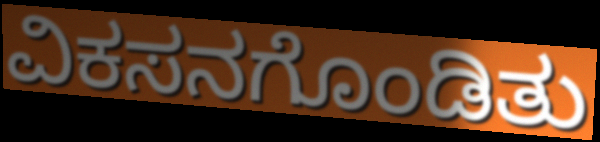
ವಿಕಸನಗೊಂಡಿತು